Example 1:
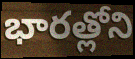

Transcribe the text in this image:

భారత్లోని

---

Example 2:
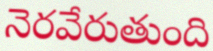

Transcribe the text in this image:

నెరవేరుతుంది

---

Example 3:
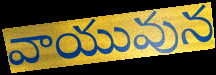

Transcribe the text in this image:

వాయువున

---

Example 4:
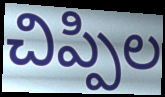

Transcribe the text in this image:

చిప్పిల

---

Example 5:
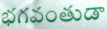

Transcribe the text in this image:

భగవంతుడా